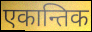
एकान्तिक